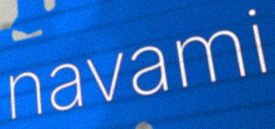
navami